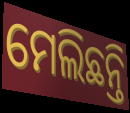
ମେଲିଛନ୍ତି